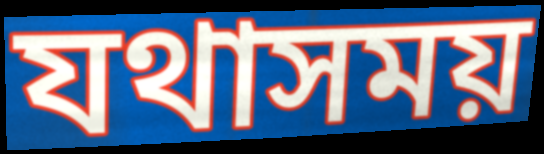
যথাসময়